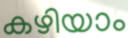
കഴിയാം